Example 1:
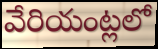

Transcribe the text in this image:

వేరియంట్లలో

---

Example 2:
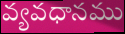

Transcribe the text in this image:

వ్యవధానము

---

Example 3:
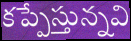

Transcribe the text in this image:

కప్పేస్తున్నవి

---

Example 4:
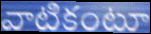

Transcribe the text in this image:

వాటికంటూ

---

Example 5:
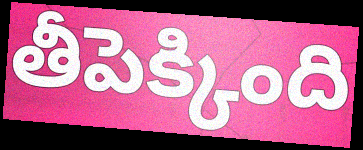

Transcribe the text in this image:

తీపెక్కింది